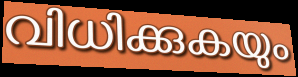
വിധിക്കുകയും